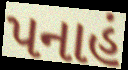
પનાહં